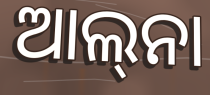
ଆଲ୍‍ନା